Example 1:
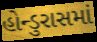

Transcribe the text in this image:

હોન્ડુરાસમાં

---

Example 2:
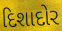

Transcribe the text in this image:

દિશાદોર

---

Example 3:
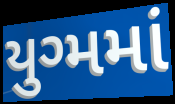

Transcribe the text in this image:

યુગ્મમાં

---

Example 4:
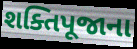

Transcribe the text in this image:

શક્તિપૂજાના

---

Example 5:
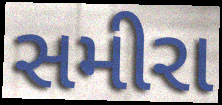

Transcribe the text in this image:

સમીરા